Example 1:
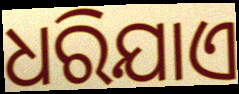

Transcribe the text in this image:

ଧରିଯାଏ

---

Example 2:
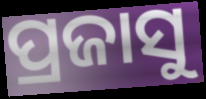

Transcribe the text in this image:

ପ୍ରଜାସୁ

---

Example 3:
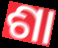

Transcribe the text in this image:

ଶା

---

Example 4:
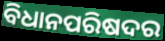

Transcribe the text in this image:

ବିଧାନପରିଷଦର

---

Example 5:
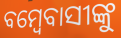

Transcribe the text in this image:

ବମ୍ବେବାସୀଙ୍କୁ